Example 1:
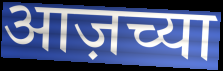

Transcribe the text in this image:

आज़च्या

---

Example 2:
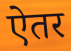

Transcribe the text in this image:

ऐतर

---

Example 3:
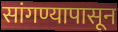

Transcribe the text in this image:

सांगण्यापासून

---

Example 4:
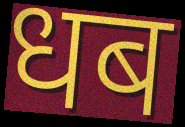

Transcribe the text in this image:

धब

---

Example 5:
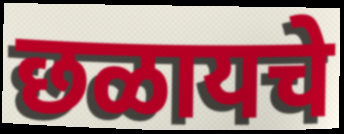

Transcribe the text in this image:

छळायचे